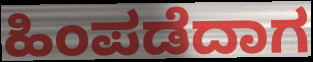
ಹಿಂಪಡೆದಾಗ